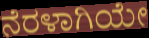
ನೆರಳಾಗಿಯೇ